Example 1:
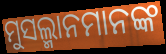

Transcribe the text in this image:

ମୁସଲ୍ମାନମାନଙ୍କ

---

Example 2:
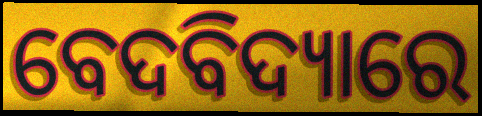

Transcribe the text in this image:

ବେଦବିଦ୍ୟାରେ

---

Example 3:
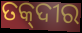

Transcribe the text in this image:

ତକ୍‌ଦୀର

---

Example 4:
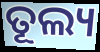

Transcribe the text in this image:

ତୂଲ୍ୟ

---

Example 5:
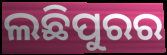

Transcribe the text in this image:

ଲଛିପୁରର